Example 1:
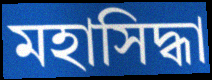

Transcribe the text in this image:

মহাসিদ্ধা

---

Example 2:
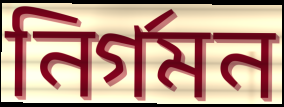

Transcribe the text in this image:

নিৰ্গমন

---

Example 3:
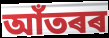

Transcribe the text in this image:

আঁতৰৰ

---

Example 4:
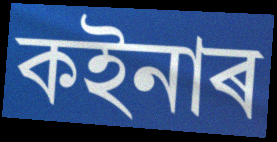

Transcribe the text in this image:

কইনাৰ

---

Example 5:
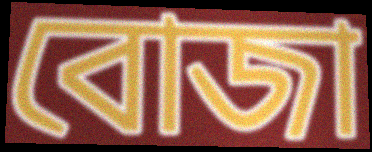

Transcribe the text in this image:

বোজা